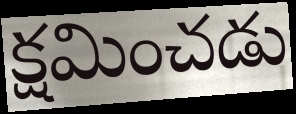
క్షమించడు